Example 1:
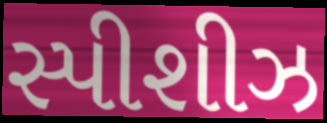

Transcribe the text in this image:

સ્પીશીઝ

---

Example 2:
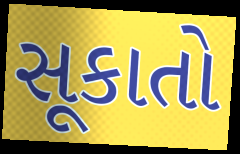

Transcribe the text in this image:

સૂકાતો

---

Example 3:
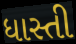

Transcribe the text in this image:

ધાસ્તી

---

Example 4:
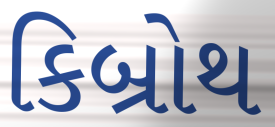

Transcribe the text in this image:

કિબ્રોથ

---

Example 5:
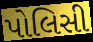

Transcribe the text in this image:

પોલિસી